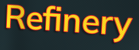
Refinery